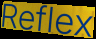
Reflex